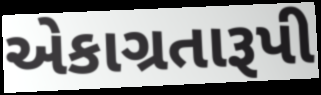
એકાગ્રતારૂપી